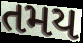
તમય